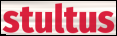
stultus